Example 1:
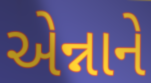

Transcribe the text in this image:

એન્નાને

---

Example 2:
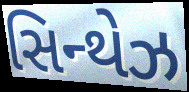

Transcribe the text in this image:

સિન્થેઝ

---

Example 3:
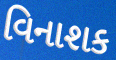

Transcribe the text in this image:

વિનાશક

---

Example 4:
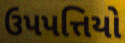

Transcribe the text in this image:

ઉપપત્તિયો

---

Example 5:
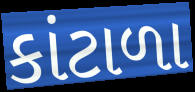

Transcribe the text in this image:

કાંટાળા